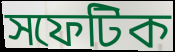
সফেটিক